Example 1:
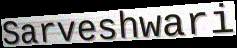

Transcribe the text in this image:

Sarveshwari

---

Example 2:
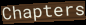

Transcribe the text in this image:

Chapters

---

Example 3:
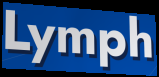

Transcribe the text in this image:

Lymph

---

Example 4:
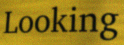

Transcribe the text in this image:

Looking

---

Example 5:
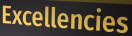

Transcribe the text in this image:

Excellencies